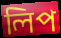
লিপ